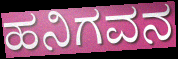
ಹನಿಗವನ